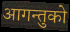
आगन्तुको